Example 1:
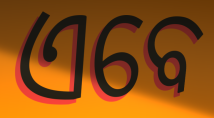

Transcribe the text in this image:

ଏବେ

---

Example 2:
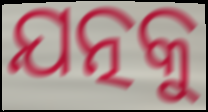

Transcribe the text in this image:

ଯତ୍ନକୁ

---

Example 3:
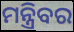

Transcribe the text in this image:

ମନ୍ତ୍ରିବର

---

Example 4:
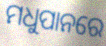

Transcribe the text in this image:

ମଧୁପାନରେ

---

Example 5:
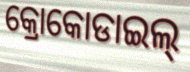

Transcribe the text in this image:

କ୍ରୋକୋଡାଇଲ୍